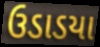
ઉડાડયા